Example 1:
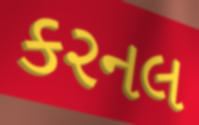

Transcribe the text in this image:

કરનલ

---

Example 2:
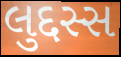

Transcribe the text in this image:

લુદ્દસ્સ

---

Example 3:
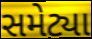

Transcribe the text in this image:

સમેટ્યા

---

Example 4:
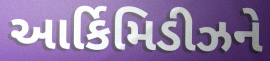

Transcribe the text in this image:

આર્કિમિડીઝને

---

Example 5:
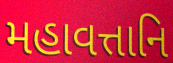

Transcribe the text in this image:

મહાવત્તાનિ